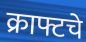
क्राफ्टचे